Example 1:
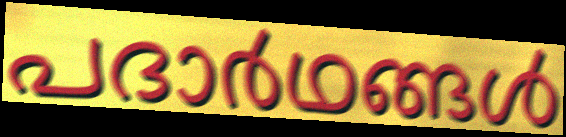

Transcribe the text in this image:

പദാർഥങ്ങൾ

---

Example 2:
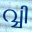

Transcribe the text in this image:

വ്വി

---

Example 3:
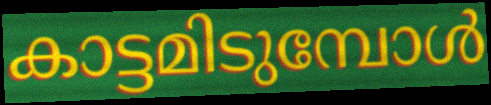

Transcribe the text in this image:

കാട്ടമിടുമ്പോൾ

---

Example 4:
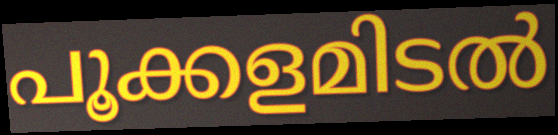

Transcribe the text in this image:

പൂക്കളമിടൽ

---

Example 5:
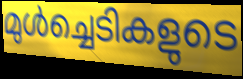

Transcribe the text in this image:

മുൾച്ചെടികളുടെ